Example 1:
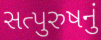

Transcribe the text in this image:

સત્પુરુષનું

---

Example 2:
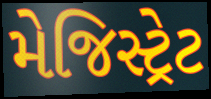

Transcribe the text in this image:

મેજિસ્ટ્રેટ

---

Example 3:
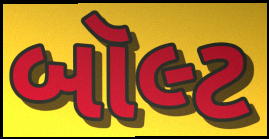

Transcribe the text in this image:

બૉલ્ટ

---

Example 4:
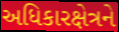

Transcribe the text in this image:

અધિકારક્ષેત્રને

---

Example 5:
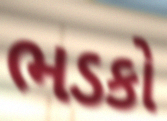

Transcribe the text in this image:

ભડકો